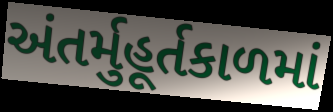
અંતર્મુહૂર્તકાળમાં